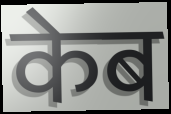
केब